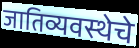
जातिव्यवस्थेचे